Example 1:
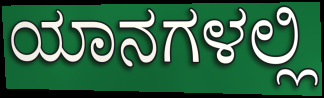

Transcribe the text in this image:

ಯಾನಗಳಲ್ಲಿ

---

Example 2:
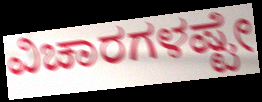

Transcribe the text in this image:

ವಿಚಾರಗಳಷ್ಟೇ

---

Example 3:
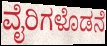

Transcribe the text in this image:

ವೈರಿಗಳೊಡನೆ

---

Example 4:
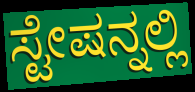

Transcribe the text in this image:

ಸ್ಟೇಷನ್ನಲ್ಲಿ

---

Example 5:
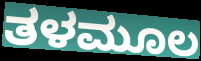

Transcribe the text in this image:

ತಳಮೂಲ